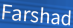
Farshad